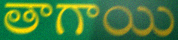
తాగాయి